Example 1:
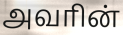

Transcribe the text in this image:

அவரின்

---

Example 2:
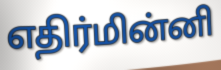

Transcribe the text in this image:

எதிர்மின்னி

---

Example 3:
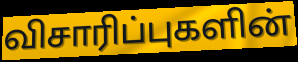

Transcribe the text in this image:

விசாரிப்புகளின்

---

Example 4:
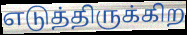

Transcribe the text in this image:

எடுத்திருக்கிற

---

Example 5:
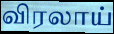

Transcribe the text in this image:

விரலாய்